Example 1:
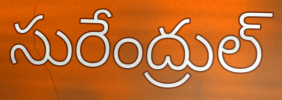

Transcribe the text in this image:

సురేంద్రుల్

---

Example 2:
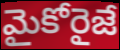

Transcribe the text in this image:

మైకోరైజే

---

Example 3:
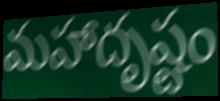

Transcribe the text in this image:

మహాదృష్టం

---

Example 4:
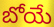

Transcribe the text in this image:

బోయే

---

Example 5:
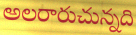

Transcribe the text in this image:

అలరారుచున్నది